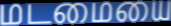
மடமையை